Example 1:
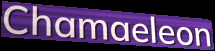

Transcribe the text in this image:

Chamaeleon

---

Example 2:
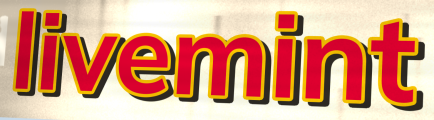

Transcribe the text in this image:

livemint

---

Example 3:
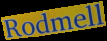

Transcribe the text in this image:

Rodmell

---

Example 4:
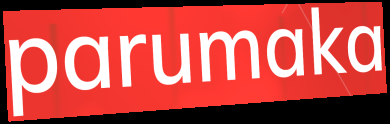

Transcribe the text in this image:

parumaka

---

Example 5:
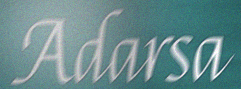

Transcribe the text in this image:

Adarsa